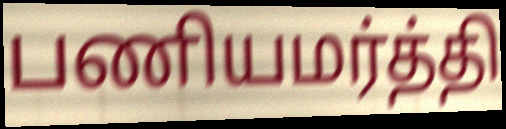
பணியமர்த்தி